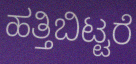
ಹತ್ತಿಬಿಟ್ಟರೆ